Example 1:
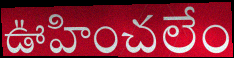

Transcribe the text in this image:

ఊహించలేం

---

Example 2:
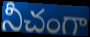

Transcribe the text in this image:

నీచంగా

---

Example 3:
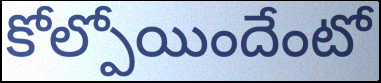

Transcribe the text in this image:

కోల్పోయిందేంటో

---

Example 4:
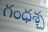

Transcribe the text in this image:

గంధశ్చ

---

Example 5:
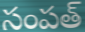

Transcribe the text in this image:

సంపత్